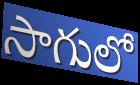
సాగులో